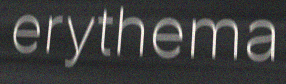
erythema